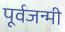
पूर्वजन्मी